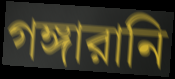
গঙ্গারানি